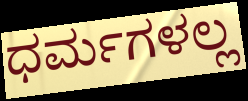
ಧರ್ಮಗಳಲ್ಲ